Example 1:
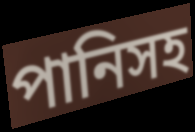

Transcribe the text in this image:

পানিসহ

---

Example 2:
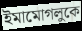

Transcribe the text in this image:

ইমামোগলুকে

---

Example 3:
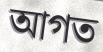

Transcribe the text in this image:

আগত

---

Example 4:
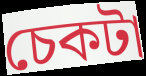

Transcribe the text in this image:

চেকটা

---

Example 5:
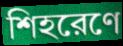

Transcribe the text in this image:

শিহরেণে